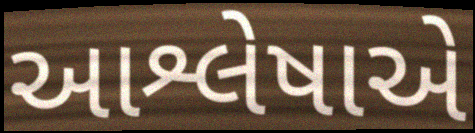
આશ્લેષાએ